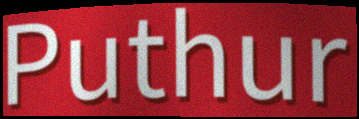
Puthur